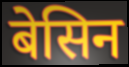
बेसिन